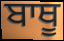
ਬਾਥੂ